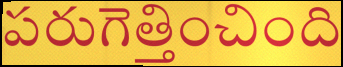
పరుగెత్తించింది